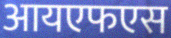
आयएफएस